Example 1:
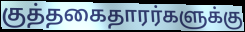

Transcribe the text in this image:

குத்தகைதாரர்களுக்கு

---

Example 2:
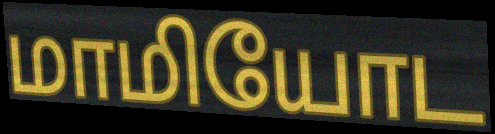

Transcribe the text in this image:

மாமியோட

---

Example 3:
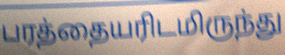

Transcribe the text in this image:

பரத்தையரிடமிருந்து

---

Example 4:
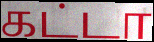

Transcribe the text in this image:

கட்டா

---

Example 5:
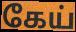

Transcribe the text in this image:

கேய்